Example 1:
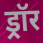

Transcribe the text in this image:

ड्रॉर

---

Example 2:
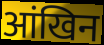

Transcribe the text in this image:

आंखिन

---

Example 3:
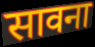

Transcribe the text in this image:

सावना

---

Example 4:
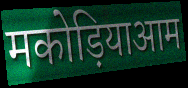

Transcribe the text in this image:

मकोड़ियाआम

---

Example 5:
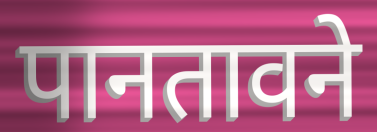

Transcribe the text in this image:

पानतावने